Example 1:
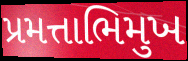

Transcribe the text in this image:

પ્રમત્તાભિમુખ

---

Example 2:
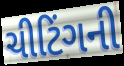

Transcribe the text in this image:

ચીટિંગની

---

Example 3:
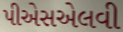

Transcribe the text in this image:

પીએસએલવી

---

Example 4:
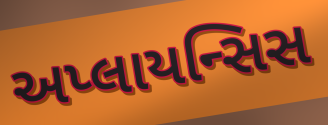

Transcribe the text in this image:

અપ્લાયન્સિસ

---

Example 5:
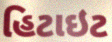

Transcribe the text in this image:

હિટાઇટ